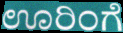
ಊರಿಂಗೆ